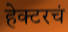
हेक्टरचं